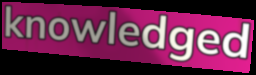
knowledged